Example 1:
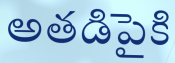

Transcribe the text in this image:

అతడిపైకి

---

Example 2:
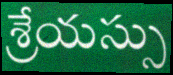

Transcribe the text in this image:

శ్రేయస్సు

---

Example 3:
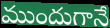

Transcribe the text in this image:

ముందుగానే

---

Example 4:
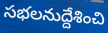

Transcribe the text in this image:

సభలనుద్దేశించి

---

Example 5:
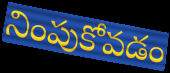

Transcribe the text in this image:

నింపుకోవడం